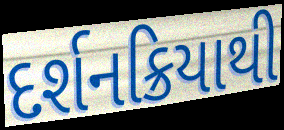
દર્શનક્રિયાથી